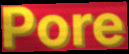
Pore